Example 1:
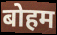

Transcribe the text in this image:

बोहम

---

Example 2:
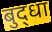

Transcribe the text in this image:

बुद्धा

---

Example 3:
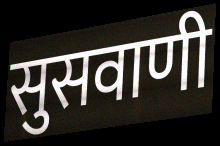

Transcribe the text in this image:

सुसवाणी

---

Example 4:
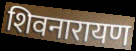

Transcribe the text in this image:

शिवनारायण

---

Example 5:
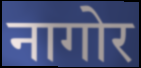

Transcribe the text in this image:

नागोर